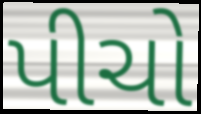
પીચો